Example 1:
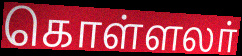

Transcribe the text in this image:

கொள்ளலர்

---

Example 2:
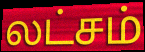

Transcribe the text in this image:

லட்சம்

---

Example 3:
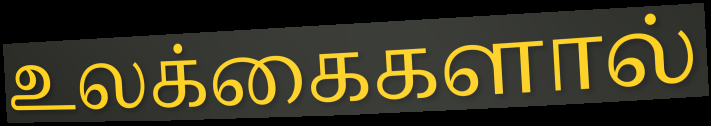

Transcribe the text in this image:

உலக்கைகளால்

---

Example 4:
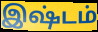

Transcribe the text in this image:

இஷ்டம்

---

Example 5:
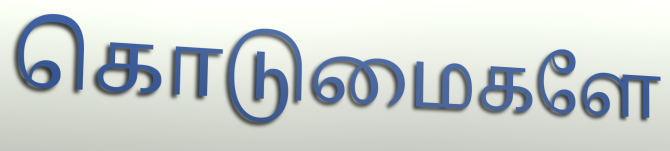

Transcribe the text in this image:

கொடுமைகளே